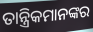
ତାନ୍ତ୍ରିକମାନଙ୍କର